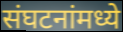
संघटनांमध्ये